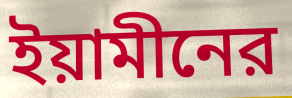
ইয়ামীনের